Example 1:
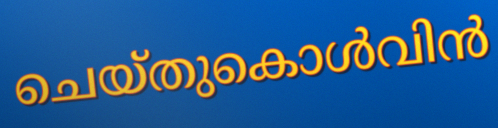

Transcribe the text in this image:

ചെയ്തുകൊൾവിൻ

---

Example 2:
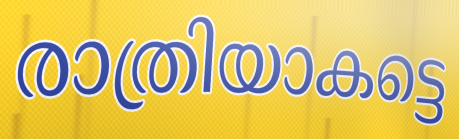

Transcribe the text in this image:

രാത്രിയാകട്ടെ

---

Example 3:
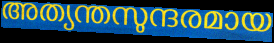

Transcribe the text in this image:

അത്യന്തസുന്ദരമായ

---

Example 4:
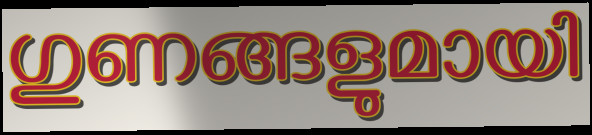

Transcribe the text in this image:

ഗുണങ്ങളുമായി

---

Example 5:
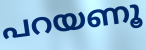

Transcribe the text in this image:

പറയണൂ